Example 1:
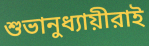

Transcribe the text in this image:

শুভানুধ্যায়ীরাই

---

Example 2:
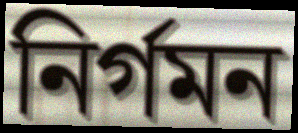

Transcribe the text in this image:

নির্গমন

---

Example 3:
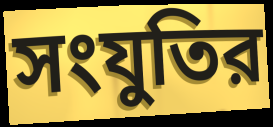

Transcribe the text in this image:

সংযুতির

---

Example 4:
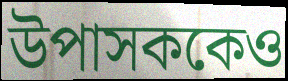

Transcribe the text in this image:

উপাসককেও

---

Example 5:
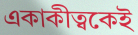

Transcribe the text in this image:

একাকীত্বকেই